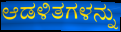
ಆಡಳಿತಗಳನ್ನು